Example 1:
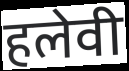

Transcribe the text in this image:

हलेवी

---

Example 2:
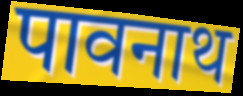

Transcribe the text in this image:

पावनाथ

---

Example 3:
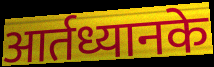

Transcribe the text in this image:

आर्तध्यानके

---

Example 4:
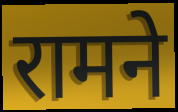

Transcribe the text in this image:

रामने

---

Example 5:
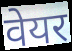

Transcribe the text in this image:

वेयर